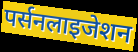
पर्सनलाइजेशन